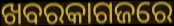
ଖବରକାଗଜରେ